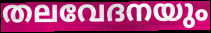
തലവേദനയും